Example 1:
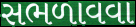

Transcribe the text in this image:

સભળાવવા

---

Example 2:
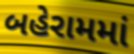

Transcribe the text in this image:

બહેરામમાં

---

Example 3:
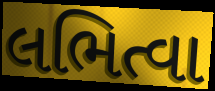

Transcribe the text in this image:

લભિત્વા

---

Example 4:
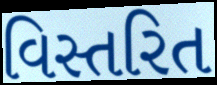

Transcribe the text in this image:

વિસ્તરિત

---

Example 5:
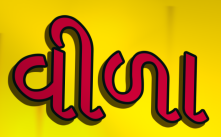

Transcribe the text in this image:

વીળા